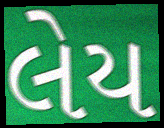
લેય